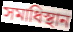
সমাধিস্থান